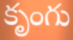
కృంగు